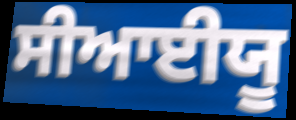
ਸੀਆਈਯੂ